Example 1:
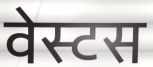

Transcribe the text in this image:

वेस्टस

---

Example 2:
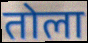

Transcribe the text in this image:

तोला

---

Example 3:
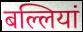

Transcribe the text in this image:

बल्लियां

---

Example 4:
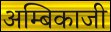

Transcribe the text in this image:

अम्बिकाजी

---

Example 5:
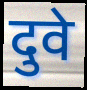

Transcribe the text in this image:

दुवे